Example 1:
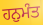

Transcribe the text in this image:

ਹਨੁਮੰਤ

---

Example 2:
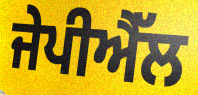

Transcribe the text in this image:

ਜੇਪੀਐੱਲ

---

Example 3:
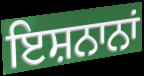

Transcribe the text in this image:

ਇਸ਼ਨਾਨਾਂ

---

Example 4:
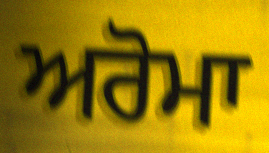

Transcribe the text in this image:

ਅਰੋਮਾ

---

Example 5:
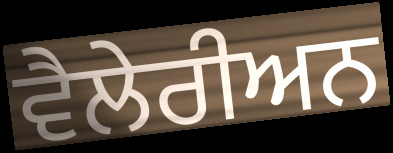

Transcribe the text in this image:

ਵੈਲੇਰੀਅਨ